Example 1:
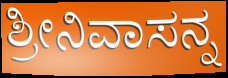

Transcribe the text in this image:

ಶ್ರೀನಿವಾಸನ್ನ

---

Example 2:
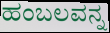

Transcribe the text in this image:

ಹಂಬಲವನ್ನ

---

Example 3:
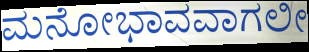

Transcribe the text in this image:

ಮನೋಭಾವವಾಗಲೀ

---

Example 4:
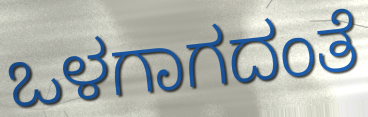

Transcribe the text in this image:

ಒಳಗಾಗದಂತೆ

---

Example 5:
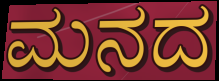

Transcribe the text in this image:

ಮನದ